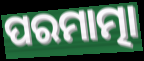
ପରମାତ୍ମା